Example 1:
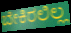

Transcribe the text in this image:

ಬೇಕಿರಲಿಲ್ಲ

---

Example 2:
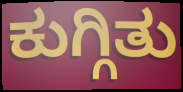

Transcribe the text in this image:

ಕುಗ್ಗಿತು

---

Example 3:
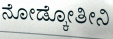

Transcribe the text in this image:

ನೋಡ್ಕೋತೀನಿ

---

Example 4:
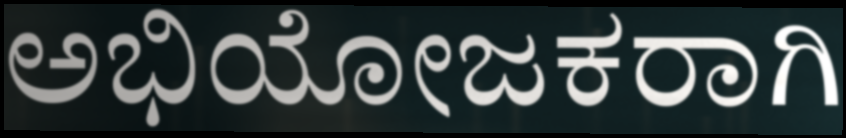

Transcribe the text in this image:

ಅಭಿಯೋಜಕರಾಗಿ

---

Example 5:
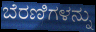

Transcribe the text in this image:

ಬೆರಣಿಗಳನ್ನು